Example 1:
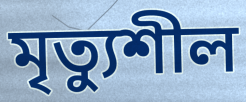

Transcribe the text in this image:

মৃত্যুশীল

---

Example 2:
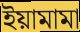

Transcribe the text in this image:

ইয়ামামা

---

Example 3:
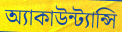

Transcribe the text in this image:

অ্যাকাউন্ট্যান্সি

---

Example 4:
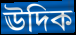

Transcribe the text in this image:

ঊদিক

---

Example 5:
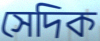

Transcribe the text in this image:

সেদিক